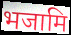
भजामि